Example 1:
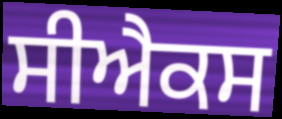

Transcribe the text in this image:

ਸੀਐਕਸ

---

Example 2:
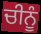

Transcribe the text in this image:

ਚੀਨੂੰ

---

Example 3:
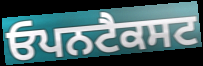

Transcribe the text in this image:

ਓਪਨਟੈਕਸਟ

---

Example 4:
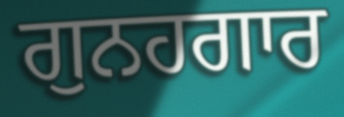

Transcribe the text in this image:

ਗੁਨਹਗਾਰ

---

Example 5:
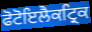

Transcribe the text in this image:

ਫੋਟੋਇਲੈਕਟ੍ਰਿਕ